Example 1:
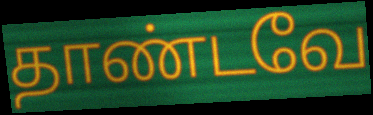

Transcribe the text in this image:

தாண்டவே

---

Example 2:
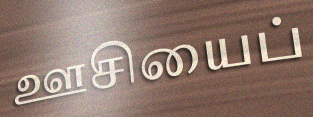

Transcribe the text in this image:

ஊசியைப்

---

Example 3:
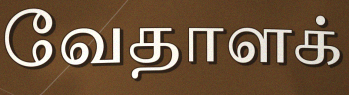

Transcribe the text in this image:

வேதாளக்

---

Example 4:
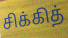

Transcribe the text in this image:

சிக்கித்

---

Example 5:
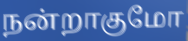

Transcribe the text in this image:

நன்றாகுமோ